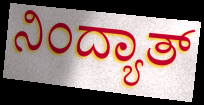
ನಿಂದ್ಯಾತ್